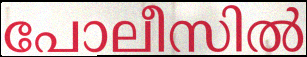
പോലീസിൽ